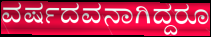
ವರ್ಷದವನಾಗಿದ್ದರೂ